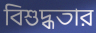
বিশুদ্ধতার